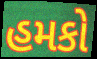
હમકો